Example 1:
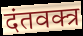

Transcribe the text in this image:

दंतवक्त्र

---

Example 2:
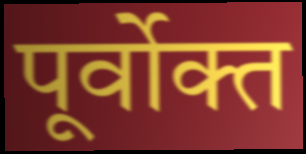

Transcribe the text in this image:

पूर्वोक्त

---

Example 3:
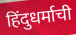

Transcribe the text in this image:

हिंदुधर्माची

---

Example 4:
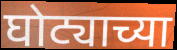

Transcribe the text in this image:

घोट्याच्या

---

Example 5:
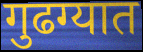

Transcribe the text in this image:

गुढग्यात